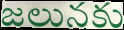
జలునకు